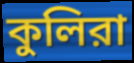
কুলিরা